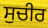
ਸੁਚੀਰ